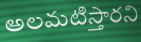
అలమటిస్తారని